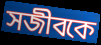
সজীবকে